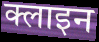
क्लाइन